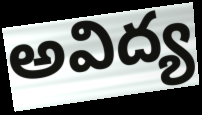
అవిద్య